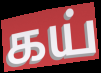
கய்